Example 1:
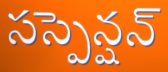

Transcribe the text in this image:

సస్పెన్షన్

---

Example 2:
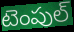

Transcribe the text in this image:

టెంపుల్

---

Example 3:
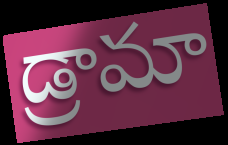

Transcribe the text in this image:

డ్రామా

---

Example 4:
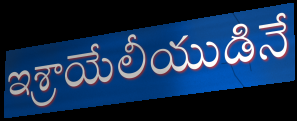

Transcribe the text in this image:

ఇశ్రాయేలీయుడినే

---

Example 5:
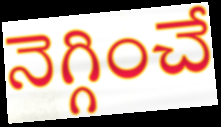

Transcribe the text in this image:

నెగ్గించే